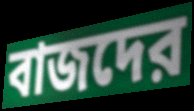
বাজদের